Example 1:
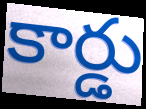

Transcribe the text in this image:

కార్డు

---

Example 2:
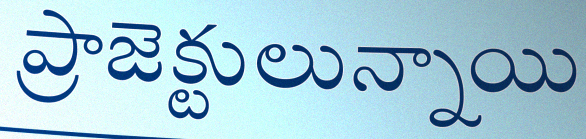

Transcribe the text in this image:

ప్రాజెక్టులున్నాయి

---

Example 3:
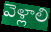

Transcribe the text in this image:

వెళ్లాలి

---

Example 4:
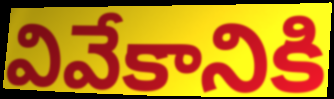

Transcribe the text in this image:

వివేకానికి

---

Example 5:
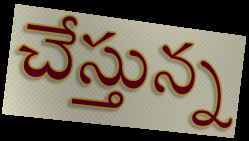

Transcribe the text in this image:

చేస్తున్న